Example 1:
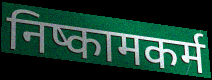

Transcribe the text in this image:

निष्कामकर्म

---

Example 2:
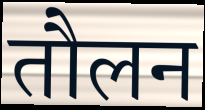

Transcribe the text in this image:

तौलन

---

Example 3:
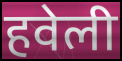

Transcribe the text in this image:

हवेली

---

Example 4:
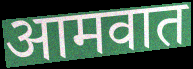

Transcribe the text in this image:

आमवात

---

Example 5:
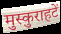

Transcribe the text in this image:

मुस्कुराहटें